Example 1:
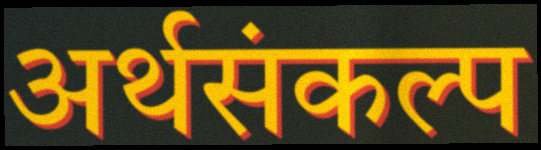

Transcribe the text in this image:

अर्थसंकल्प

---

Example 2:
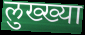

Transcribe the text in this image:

लुख्ख्या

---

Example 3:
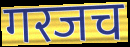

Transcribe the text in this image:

गरजच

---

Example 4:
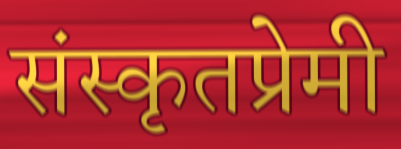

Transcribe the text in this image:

संस्कृतप्रेमी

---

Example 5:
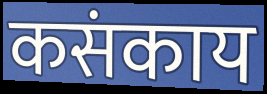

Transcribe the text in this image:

कसंकाय